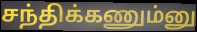
சந்திக்கணும்னு